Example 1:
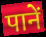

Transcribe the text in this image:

पानें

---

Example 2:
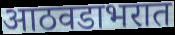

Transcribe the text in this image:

आठवडाभरात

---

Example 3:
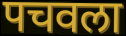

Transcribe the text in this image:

पचवला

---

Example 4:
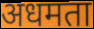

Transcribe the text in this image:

अधमता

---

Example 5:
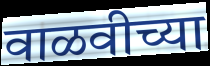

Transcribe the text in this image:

वाळवीच्या